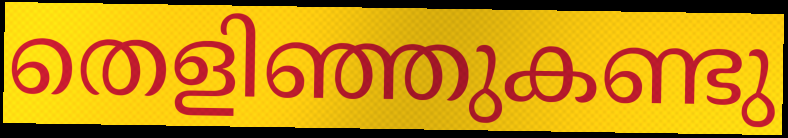
തെളിഞ്ഞുകണ്ടു